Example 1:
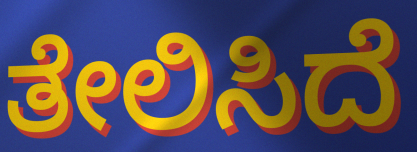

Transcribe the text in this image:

ತೇಲಿಸಿದೆ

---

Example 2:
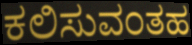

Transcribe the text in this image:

ಕಲಿಸುವಂತಹ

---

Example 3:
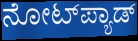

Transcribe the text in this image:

ನೋಟ್‌ಪ್ಯಾಡ್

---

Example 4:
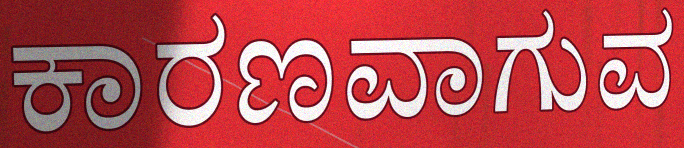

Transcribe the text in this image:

ಕಾರಣವಾಗುವ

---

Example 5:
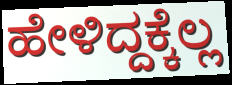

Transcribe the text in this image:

ಹೇಳಿದ್ದಕ್ಕೆಲ್ಲ